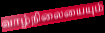
வாழ்நிலையையும்